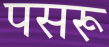
पसरू